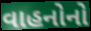
વાહનોનો